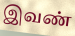
இவண்